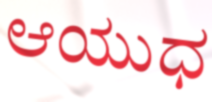
ಆಯುಧ